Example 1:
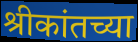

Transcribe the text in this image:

श्रीकांतच्या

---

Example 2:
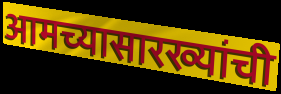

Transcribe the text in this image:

आमच्यासारख्यांची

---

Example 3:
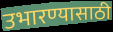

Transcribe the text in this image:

उभारण्यासाठी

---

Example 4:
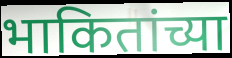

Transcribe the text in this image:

भाकितांच्या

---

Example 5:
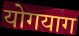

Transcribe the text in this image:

योगयाग